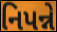
નિપન્ને